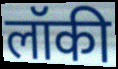
लॉकी